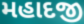
મહાદજી